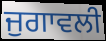
ਜੁਗਾਵਲੀ